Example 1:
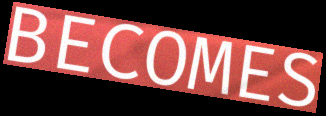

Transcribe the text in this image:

BECOMES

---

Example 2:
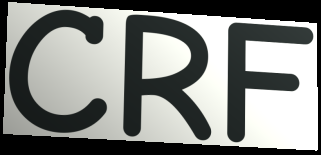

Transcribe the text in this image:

CRF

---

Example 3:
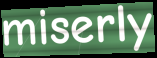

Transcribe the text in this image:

miserly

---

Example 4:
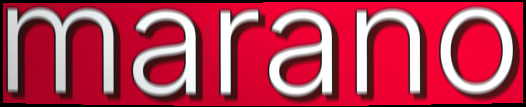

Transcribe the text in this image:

marano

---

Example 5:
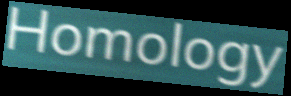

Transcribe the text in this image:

Homology